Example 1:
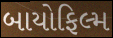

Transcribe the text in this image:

બાયોફિલ્મ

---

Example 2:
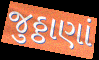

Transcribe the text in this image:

જુઠ્ઠાણાં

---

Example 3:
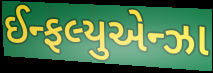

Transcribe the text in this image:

ઈન્ફલ્યુએન્ઝા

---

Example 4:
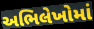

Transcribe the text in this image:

અભિલેખોમાં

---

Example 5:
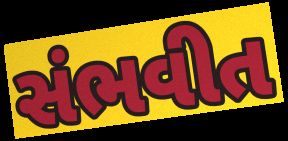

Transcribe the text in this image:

સંભવીત